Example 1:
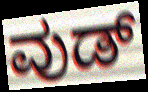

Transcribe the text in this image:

ವುಡ್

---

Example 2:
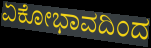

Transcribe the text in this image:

ಏಕೋಭಾವದಿಂದ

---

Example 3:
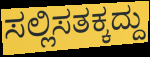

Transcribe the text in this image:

ಸಲ್ಲಿಸತಕ್ಕದ್ದು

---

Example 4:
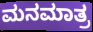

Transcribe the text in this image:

ಮನಮಾತ್ರ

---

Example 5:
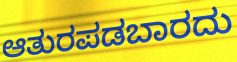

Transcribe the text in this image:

ಆತುರಪಡಬಾರದು